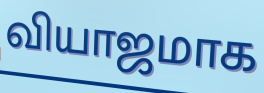
வியாஜமாக